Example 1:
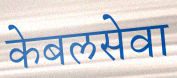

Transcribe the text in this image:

केबलसेवा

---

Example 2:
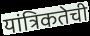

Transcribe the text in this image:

यांत्रिकतेची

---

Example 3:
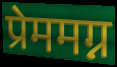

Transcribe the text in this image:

प्रेममग्न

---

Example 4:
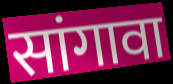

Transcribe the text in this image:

सांगावा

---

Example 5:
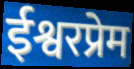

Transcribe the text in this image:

ईश्वरप्रेम